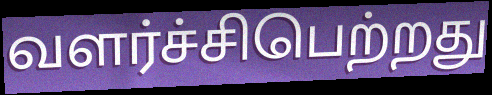
வளர்ச்சிபெற்றது